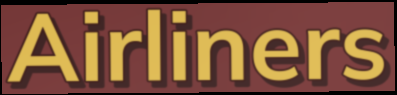
Airliners